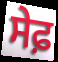
ਸੇਫ਼